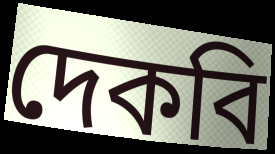
দেকবি